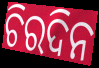
ଚିରଦିନ